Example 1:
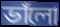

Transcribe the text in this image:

ভাঁলো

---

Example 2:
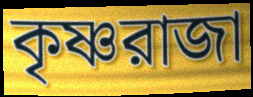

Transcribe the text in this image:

কৃষ্ণরাজা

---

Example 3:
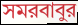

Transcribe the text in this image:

সমরবাবুর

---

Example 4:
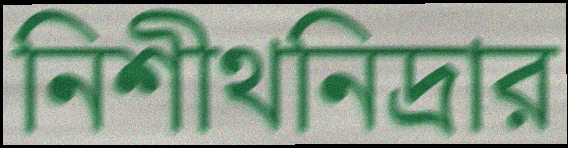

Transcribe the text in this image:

নিশীথনিদ্রার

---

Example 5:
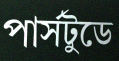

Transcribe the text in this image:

পার্সটুডে